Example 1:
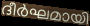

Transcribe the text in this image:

ദീർഘമായി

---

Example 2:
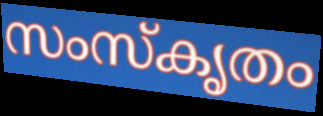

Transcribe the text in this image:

സംസ്കൃതം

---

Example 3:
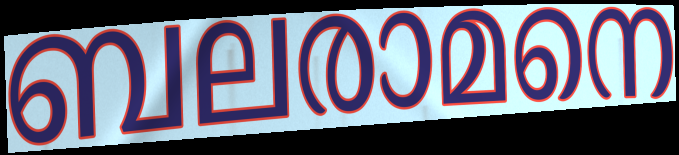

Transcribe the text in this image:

ബലരാമനെ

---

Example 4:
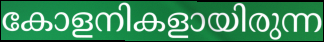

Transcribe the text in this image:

കോളനികളായിരുന്ന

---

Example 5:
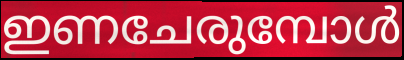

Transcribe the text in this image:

ഇണചേരുമ്പോൾ